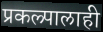
प्रकल्पालाही